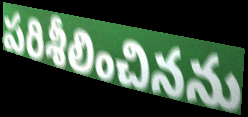
పరిశీలించినను